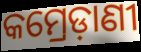
କମ୍ରେଡ଼ାଣୀ